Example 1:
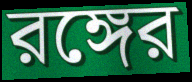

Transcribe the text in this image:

রঙ্গের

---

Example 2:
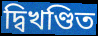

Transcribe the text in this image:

দ্বিখণ্ডিত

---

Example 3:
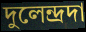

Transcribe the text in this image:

দুলেন্দ্রদা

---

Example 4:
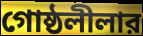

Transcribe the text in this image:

গোষ্ঠলীলার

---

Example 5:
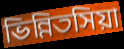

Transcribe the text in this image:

ভিন্নিতসিয়া